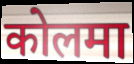
कोलमा